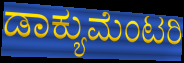
ಡಾಕ್ಯುಮೆಂಟರಿ